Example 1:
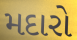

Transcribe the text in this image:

મદારો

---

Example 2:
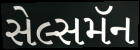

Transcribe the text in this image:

સેલ્સમૅન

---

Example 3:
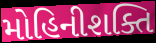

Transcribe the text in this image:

મોહિનીશક્તિ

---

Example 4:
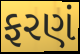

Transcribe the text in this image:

ફરણં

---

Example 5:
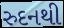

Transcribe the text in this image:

રુદનથી